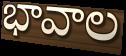
భావాల